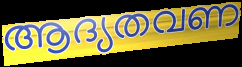
ആദ്യതവണ